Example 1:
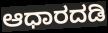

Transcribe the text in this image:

ಆಧಾರದಡಿ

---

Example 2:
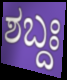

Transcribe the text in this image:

ಶಬ್ದಃ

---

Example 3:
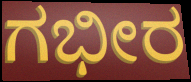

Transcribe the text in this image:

ಗಭೀರ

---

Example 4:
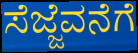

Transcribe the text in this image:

ಸೆಜ್ಜೆವನೆಗೆ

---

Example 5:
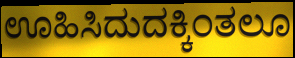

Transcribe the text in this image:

ಊಹಿಸಿದುದಕ್ಕಿಂತಲೂ